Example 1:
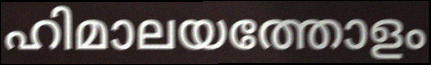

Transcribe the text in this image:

ഹിമാലയത്തോളം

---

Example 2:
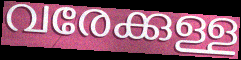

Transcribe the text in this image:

വരേക്കുള്ള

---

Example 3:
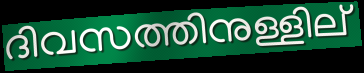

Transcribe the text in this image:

ദിവസത്തിനുള്ളില്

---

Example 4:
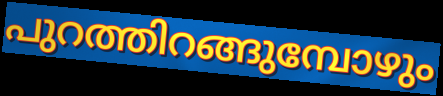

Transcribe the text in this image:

പുറത്തിറങ്ങുമ്പോഴും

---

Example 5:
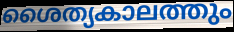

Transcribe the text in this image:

ശൈത്യകാലത്തും